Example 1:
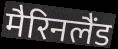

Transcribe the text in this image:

मैरिनलैंड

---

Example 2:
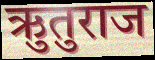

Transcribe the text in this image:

ऋुतुराज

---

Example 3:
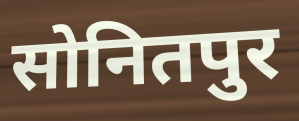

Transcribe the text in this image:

सोनितपुर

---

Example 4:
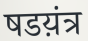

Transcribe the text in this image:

षडय़ंत्र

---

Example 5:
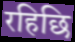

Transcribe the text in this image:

रहिछि